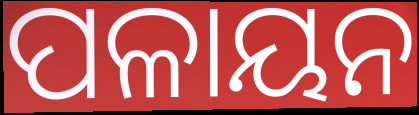
ପଳାୟନ